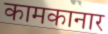
कामकानार